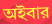
অইবার